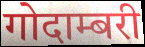
गोदाम्बरी